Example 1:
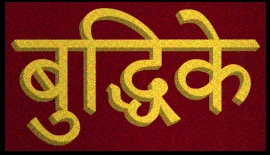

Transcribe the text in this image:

बुद्धिके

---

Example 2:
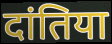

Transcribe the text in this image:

दांतिया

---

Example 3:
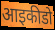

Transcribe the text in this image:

आइकीडो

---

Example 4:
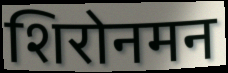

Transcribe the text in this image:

शिरोनमन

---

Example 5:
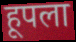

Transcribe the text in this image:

हूपला